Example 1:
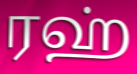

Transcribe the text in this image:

ரஹ்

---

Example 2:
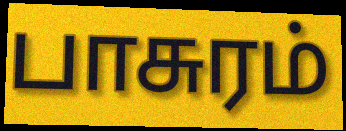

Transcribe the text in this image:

பாசுரம்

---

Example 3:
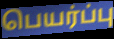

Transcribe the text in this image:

பெயர்ப்பு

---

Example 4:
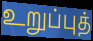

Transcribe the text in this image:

உறுப்புத்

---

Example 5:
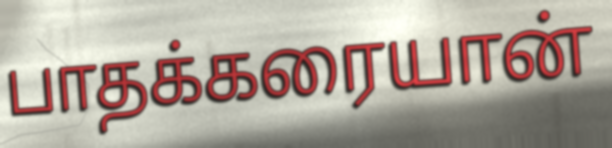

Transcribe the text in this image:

பாதக்கரையான்